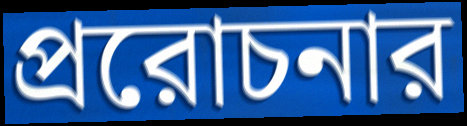
প্ররোচনার